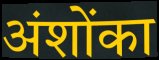
अंशोंका